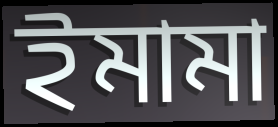
ইমামা